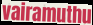
vairamuthu